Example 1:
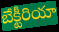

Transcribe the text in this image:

బేక్టీరియా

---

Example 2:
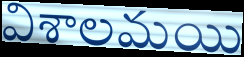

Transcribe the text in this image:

విశాలమయి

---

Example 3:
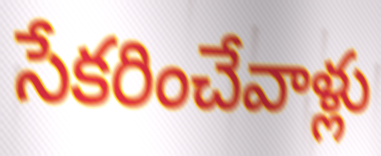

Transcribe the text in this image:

సేకరించేవాళ్లు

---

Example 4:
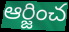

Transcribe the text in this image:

ఆర్జించ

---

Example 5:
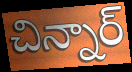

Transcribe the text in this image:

చిన్నార్